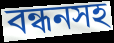
বন্ধনসহ